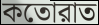
কতোরাত